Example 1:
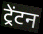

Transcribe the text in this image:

ट्रेंटन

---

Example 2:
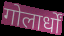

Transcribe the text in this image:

गोलार्धों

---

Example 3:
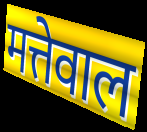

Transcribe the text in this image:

मत्तेवाल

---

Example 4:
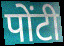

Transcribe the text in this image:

पोंटी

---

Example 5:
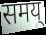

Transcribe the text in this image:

समय्